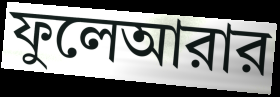
ফুলেআরার